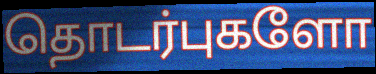
தொடர்புகளோ